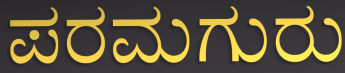
ಪರಮಗುರು